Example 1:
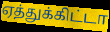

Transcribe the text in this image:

ஏத்துக்கிட்டா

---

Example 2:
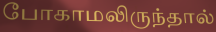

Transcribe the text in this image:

போகாமலிருந்தால்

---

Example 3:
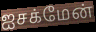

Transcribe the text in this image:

ஐசக்மேன்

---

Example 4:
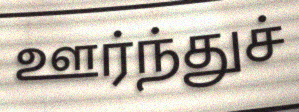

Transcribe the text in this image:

ஊர்ந்துச்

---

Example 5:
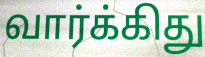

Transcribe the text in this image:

வார்க்கிது